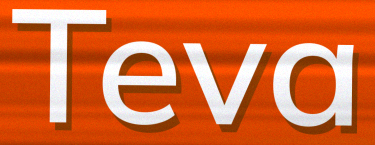
Teva